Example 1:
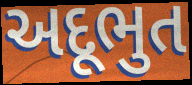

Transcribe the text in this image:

અદૂભુત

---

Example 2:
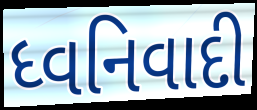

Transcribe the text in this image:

ધ્વનિવાદી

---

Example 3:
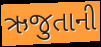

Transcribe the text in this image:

ઋજુતાની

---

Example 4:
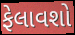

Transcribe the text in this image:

ફેલાવશો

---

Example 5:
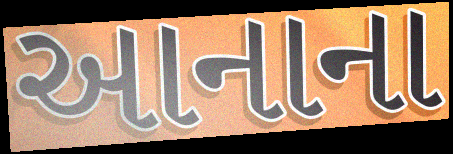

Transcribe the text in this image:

આનાના